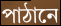
পাঠানে